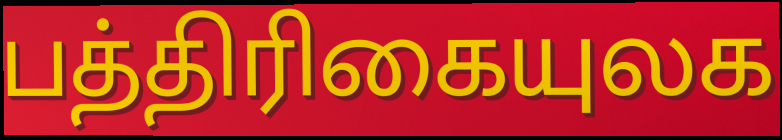
பத்திரிகையுலக